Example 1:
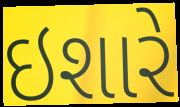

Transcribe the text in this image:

ઇશારે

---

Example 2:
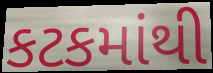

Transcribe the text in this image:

કટકમાંથી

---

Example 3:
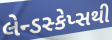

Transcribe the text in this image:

લેન્ડસ્કેપ્સથી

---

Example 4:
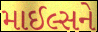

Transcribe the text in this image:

માઈલ્સને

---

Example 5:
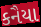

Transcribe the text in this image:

કનૈયા